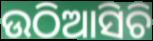
ଉଠିଆସିଚି